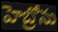
హెబ్రోను